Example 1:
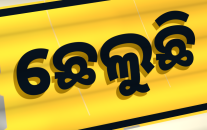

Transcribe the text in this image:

ଛେଲୁଛି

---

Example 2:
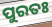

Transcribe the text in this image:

ପୁରତଃ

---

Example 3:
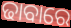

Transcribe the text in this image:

ଢାବାରେ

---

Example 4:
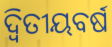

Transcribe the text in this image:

ଦ୍ୱିତୀୟବର୍ଷ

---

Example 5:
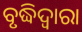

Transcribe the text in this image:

ବୃଦ୍ଧିଦ୍ୱାରା